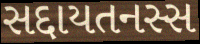
સદ્દાયતનસ્સ